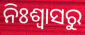
ନିଃଶ୍ବାସରୁ